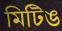
মিটিঙ